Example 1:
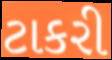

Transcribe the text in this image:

ટાકરી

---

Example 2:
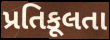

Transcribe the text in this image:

પ્રતિકૂલતા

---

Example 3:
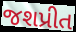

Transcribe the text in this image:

જશપ્રીત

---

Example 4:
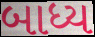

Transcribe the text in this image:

બાધ્ય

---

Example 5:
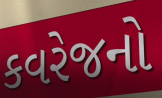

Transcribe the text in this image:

કવરેજનો